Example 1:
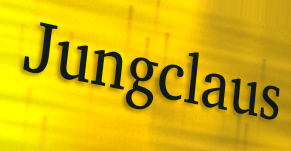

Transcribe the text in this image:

Jungclaus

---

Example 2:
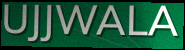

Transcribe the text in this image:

UJJWALA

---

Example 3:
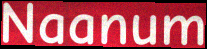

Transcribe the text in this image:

Naanum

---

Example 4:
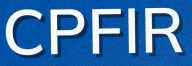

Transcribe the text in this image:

CPFIR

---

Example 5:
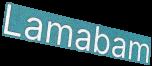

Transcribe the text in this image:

Lamabam